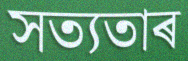
সত্যতাৰ